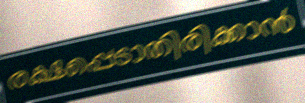
രക്ഷപ്പെടാതിരിക്കാൻ